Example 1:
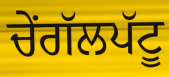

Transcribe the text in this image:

ਚੇਂਗੱਲਪੱਟੂ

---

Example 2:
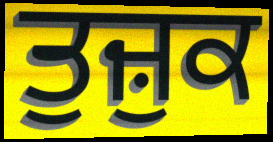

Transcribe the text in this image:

ਤੁਜ਼ੁਕ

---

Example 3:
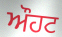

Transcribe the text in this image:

ਔਹਟ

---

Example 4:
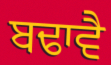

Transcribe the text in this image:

ਬਢਾਵੈ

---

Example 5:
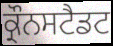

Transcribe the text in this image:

ਕ੍ਰੌਨਸਟੈਡਟ